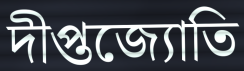
দীপ্তজ্যোতি